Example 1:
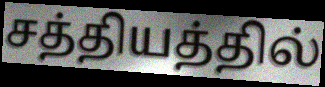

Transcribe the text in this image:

சத்தியத்தில்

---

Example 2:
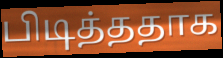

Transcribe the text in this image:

பிடித்ததாக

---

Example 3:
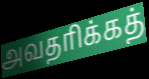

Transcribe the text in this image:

அவதரிக்கத்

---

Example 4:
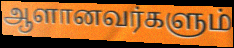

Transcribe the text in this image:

ஆளானவர்களும்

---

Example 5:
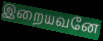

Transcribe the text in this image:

இறையவனே